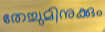
തേച്ചുമിനുക്കും